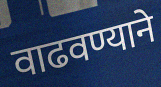
वाढवण्याने